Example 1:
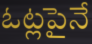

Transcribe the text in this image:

ఓట్లపైనే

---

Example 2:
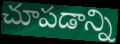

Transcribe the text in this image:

చూపడాన్ని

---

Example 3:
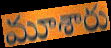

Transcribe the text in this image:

మూశారు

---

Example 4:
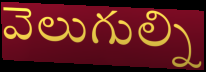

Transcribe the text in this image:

వెలుగుల్ని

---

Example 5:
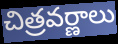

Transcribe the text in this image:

చిత్రవర్ణాలు